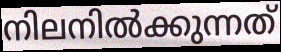
നിലനിൽക്കുന്നത്